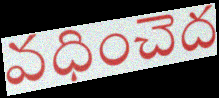
వధించెద